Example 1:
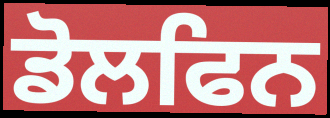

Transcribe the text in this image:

ਡੋਲਫਿਨ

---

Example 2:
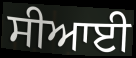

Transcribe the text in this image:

ਸੀਆਈ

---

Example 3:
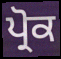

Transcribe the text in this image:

ਪ੍ਰੋਕ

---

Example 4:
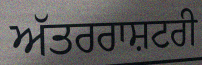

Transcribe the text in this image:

ਅੱਤਰਰਾਸ਼ਟਰੀ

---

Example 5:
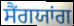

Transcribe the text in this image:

ਸੈਂਗਯਾਂਗ